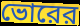
ভোরের